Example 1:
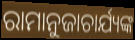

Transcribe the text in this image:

ରାମାନୁଜାଚାର୍ଯ୍ୟଙ୍କ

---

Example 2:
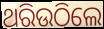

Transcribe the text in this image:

ଥରିଉଠିଲେ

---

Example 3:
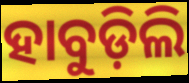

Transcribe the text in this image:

ହାବୁଡ଼ିଲି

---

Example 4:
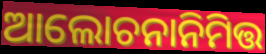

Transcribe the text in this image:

ଆଲୋଚନାନିମିତ୍ତ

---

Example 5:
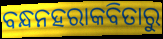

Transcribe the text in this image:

ବନ୍ଧନହରାକବିତାରୁ